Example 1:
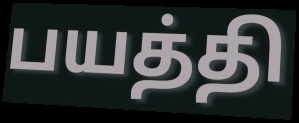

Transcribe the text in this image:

பயத்தி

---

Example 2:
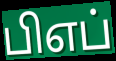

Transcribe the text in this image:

பிஎப்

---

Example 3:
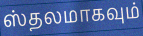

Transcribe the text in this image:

ஸ்தலமாகவும்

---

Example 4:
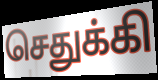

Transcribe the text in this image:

செதுக்கி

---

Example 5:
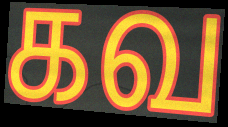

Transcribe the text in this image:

கவ